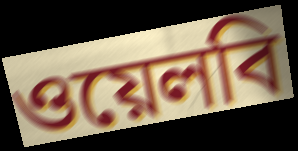
ওয়েলবি